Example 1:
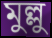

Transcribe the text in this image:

মুল্লু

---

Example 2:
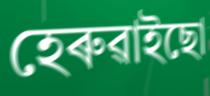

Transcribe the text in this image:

হেৰুৱাইছো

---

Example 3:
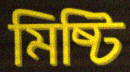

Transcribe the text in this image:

মিষ্টি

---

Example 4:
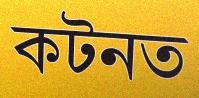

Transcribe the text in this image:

কটনত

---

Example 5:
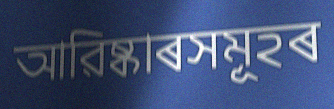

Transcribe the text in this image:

আৱিষ্কাৰসমূহৰ